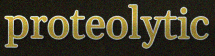
proteolytic